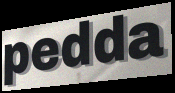
pedda